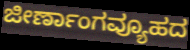
ಜೀರ್ಣಾಂಗವ್ಯೂಹದ